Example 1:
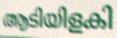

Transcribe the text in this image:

ആടിയിളകി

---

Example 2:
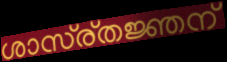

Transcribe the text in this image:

ശാസ്ര്തജ്ഞന്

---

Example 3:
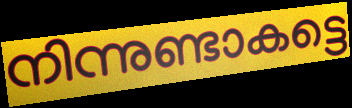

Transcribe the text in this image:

നിന്നുണ്ടാകട്ടെ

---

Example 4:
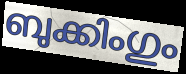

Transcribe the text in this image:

ബുക്കിംഗും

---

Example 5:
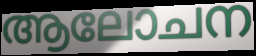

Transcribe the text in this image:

ആലോചന